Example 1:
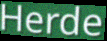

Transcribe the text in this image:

Herde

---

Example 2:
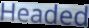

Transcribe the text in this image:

Headed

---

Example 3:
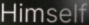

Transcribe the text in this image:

Himself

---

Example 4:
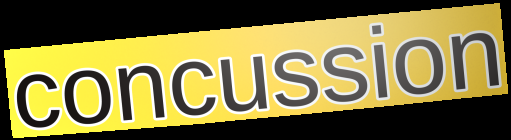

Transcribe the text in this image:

concussion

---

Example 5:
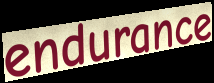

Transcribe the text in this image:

endurance